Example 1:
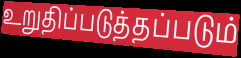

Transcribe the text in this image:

உறுதிப்படுத்தப்படும்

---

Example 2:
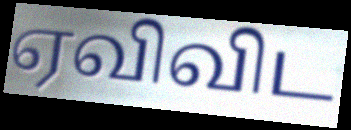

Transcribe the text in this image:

ஏவிவிட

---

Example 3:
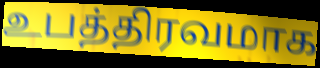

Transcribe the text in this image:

உபத்திரவமாக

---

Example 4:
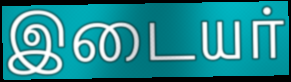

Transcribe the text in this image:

இடையர்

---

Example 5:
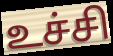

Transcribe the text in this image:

உச்சி